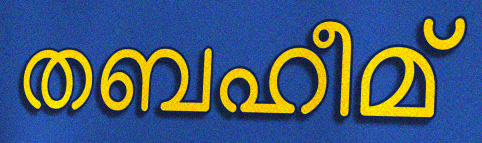
തബഹീമ്